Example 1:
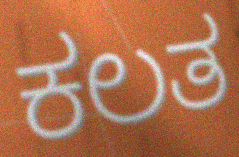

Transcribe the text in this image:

ಕಲತ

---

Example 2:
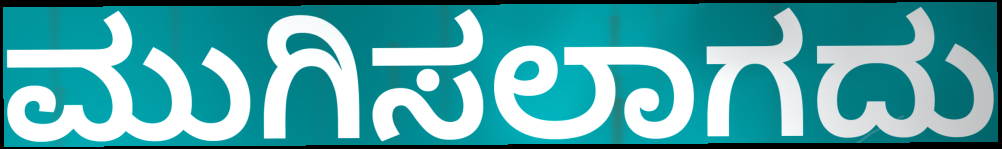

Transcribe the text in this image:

ಮುಗಿಸಲಾಗದು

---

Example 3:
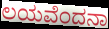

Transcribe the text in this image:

ಲಯವೆಂದನಾ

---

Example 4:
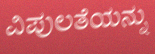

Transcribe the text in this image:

ವಿಪುಲತೆಯನ್ನು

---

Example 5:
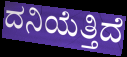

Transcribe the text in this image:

ದನಿಯೆತ್ತಿದೆ